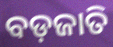
ବଡ଼ଜାତି